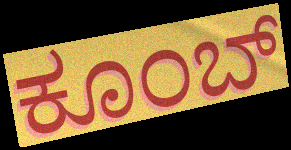
ಕೂಂಬ್